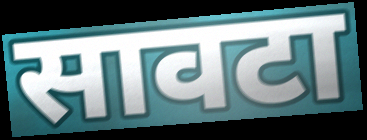
सावटा